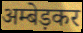
अम्बेड़कर